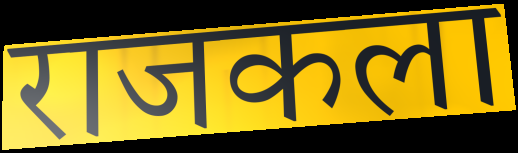
राजकला